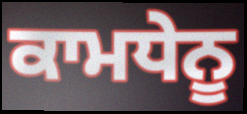
ਕਾਮਧੇਨੂ